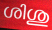
ശിശു